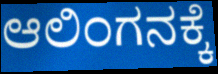
ಆಲಿಂಗನಕ್ಕೆ